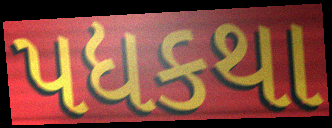
પદ્યકથા